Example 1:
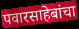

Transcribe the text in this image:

पवारसाहेबांचा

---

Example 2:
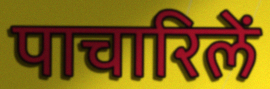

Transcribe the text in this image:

पाचारिलें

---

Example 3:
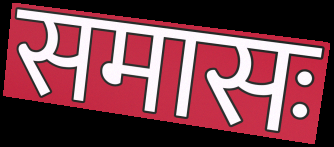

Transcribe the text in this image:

समासः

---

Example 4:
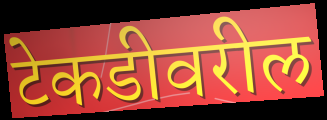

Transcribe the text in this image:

टेकडीवरील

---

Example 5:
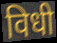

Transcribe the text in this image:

विधी